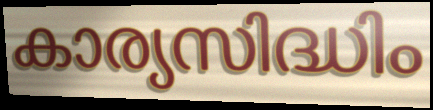
കാര്യസിദ്ധിം